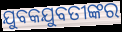
ଯୁବକଯୁବତୀଙ୍କର